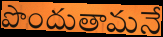
పొందుతామనే